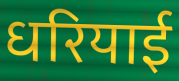
धरियाई